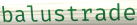
balustrade